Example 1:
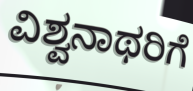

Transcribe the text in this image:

ವಿಶ್ವನಾಥರಿಗೆ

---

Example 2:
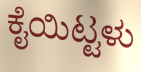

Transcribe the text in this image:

ಕೈಯಿಟ್ಟಳು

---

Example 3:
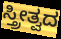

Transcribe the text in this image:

ಸ್ತ್ರೀತ್ವದ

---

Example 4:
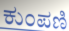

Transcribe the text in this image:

ಕುಂಪಣಿ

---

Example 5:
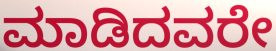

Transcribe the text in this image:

ಮಾಡಿದವರೇ